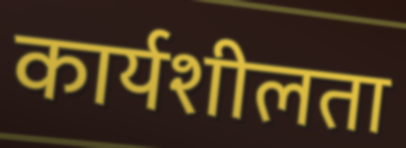
कार्यशीलता